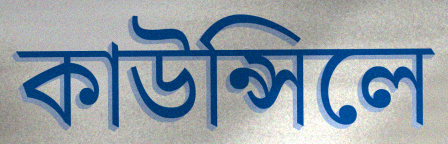
কাউন্সিলে